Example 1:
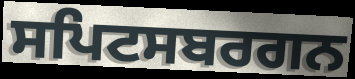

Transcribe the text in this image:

ਸਪਿਟਸਬਰਗਨ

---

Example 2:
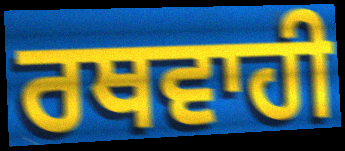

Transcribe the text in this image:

ਰਥਵਾਹੀ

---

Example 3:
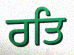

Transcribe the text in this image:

ਰਤਿ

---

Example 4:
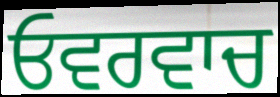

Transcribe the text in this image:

ਓਵਰਵਾਚ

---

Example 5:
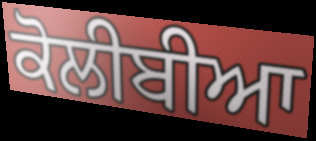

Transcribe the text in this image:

ਕੋਲੀਬੀਆ